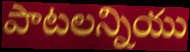
పాటలన్నియు